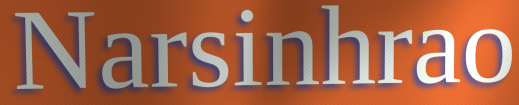
Narsinhrao